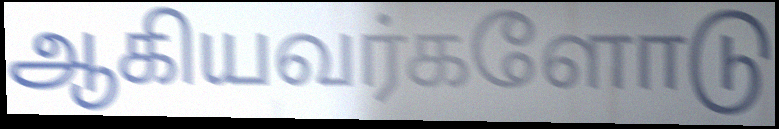
ஆகியவர்களோடு